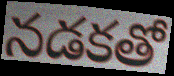
నడకతో